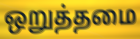
ஒறுத்தமை